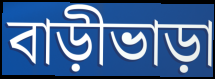
বাড়ীভাড়া